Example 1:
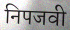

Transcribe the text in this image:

निपजवी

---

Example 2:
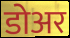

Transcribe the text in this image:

डोअर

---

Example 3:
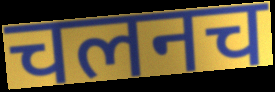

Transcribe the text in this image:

चलनच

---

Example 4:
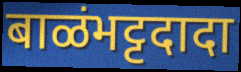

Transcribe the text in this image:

बाळंभट्टदादा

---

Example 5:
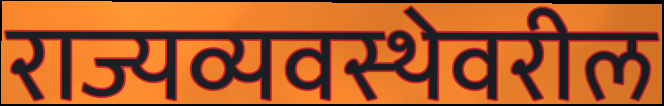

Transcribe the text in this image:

राज्यव्यवस्थेवरील